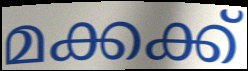
മക്കക്ക്